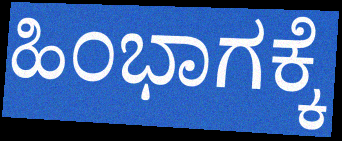
ಹಿಂಭಾಗಕ್ಕೆ